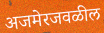
अजमेरजवळील